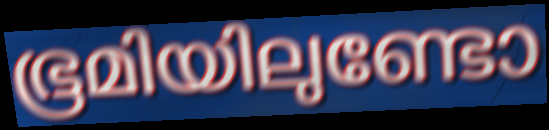
ഭൂമിയിലുണ്ടോ